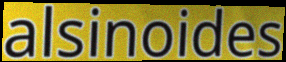
alsinoides